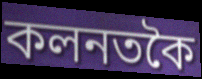
কলনতকৈ